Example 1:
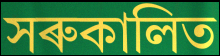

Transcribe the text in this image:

সৰুকালিত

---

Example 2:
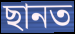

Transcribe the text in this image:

ছানত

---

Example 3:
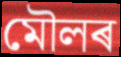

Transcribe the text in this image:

মৌলৰ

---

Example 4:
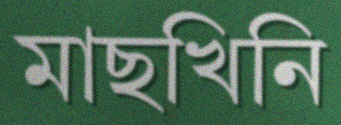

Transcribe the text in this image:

মাছখিনি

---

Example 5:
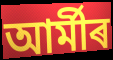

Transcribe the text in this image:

আৰ্মীৰ